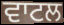
ਵਾਟਲ